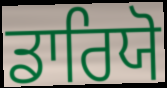
ਡਾਰਿਯੋ